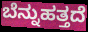
ಬೆನ್ನುಹತ್ತದೆ